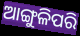
ଆଙ୍ଗୁଳିପରି